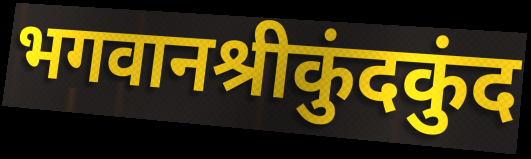
भगवानश्रीकुंदकुंद